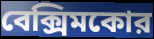
বেক্সিমকোর